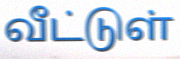
வீட்டுள்